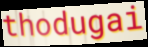
thodugai